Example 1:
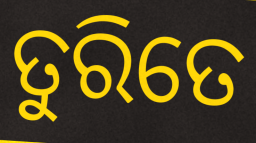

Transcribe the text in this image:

ତୁରିତେ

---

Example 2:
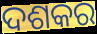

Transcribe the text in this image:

ଦଶକର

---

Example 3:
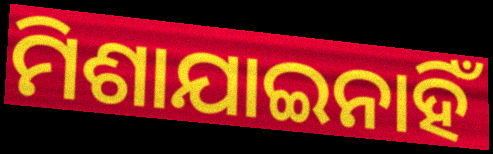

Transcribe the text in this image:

ମିଶାଯାଇନାହିଁ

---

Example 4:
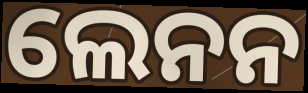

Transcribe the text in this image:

ଲେନନ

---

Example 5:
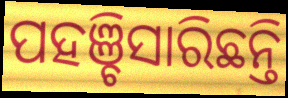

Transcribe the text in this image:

ପହଞ୍ଚିସାରିଛନ୍ତି